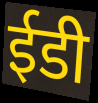
ईडी